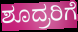
ಶೂದ್ರರಿಗೆ